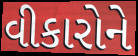
વીકારોને